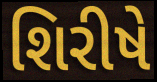
શિરીષે